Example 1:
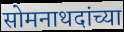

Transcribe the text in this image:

सोमनाथदांच्या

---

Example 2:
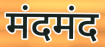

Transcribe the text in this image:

मंदमंद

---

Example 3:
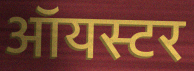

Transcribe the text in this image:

ऑयस्टर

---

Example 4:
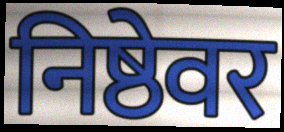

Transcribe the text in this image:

निष्ठेवर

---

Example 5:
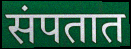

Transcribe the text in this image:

संपतात